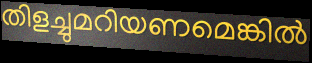
തിളച്ചുമറിയണമെങ്കിൽ